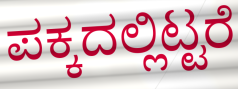
ಪಕ್ಕದಲ್ಲಿಟ್ಟರೆ